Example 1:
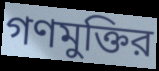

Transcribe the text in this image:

গণমুক্তির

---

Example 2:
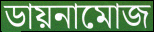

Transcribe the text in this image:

ডায়নামোজ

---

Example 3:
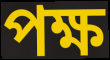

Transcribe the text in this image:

পক্ষ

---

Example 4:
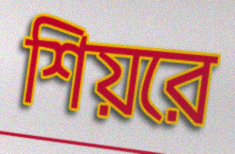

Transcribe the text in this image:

শিয়রে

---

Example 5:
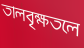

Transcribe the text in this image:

তালবৃক্ষতলে